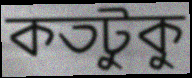
কতটুকু